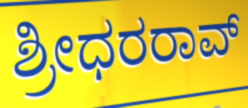
ಶ್ರೀಧರರಾವ್